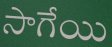
సాగేయి